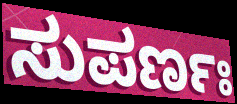
ಸುಪರ್ಣಃ